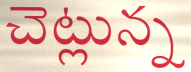
చెట్లున్న